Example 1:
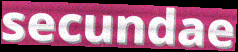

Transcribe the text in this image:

secundae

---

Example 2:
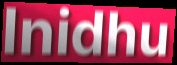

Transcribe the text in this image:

Inidhu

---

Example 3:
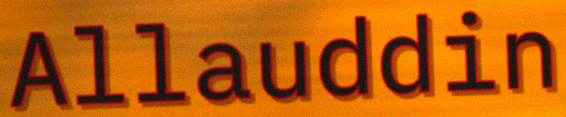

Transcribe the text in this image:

Allauddin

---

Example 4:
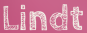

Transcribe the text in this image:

Lindt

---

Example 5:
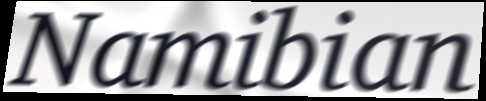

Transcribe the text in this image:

Namibian